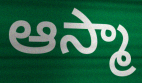
ఆస్మా